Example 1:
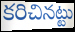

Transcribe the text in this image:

కరిచినట్టు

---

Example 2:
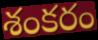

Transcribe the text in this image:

శంకరం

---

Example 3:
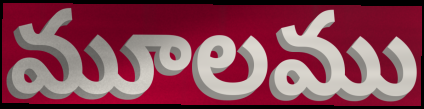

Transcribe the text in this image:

మూలము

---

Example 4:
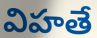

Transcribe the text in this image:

విహతే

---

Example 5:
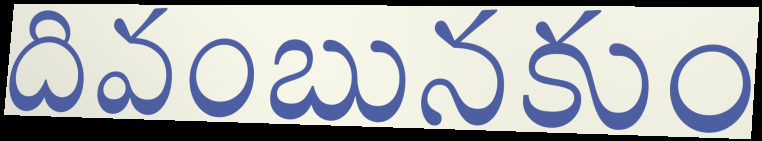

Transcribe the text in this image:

దివంబునకుం